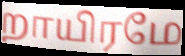
றாயிரமே